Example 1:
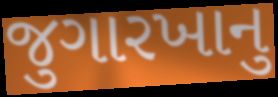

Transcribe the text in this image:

જુગારખાનુ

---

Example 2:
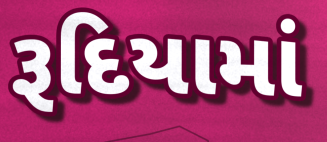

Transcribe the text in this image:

રૂદિયામાં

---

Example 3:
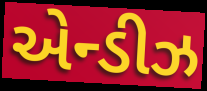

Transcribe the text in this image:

એન્ડીઝ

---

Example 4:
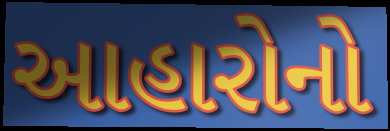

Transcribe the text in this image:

આહારોનો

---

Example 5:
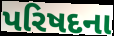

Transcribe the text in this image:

પરિષદના